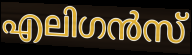
എലിഗൻസ്